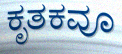
ಕೃತಕವೂ